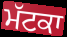
ਮੱਟਕਾ